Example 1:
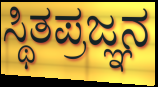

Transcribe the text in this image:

ಸ್ಥಿತಪ್ರಜ್ಞನ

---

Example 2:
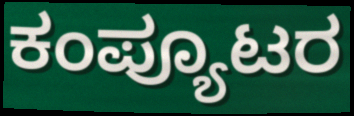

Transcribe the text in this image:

ಕಂಪ್ಯೂಟರ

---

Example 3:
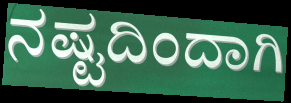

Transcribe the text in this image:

ನಷ್ಟದಿಂದಾಗಿ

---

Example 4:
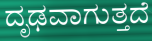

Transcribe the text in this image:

ದೃಢವಾಗುತ್ತದೆ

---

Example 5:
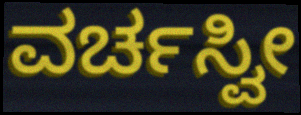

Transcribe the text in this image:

ವರ್ಚಸ್ವೀ